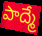
పాద్మే